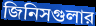
জিনিসগুলার